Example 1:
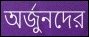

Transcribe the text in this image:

অর্জুনদের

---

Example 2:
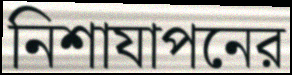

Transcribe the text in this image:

নিশাযাপনের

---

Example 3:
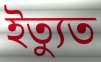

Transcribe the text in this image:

ইত্যুত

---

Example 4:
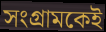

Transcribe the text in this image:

সংগ্রামকেই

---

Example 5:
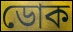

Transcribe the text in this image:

ডোক